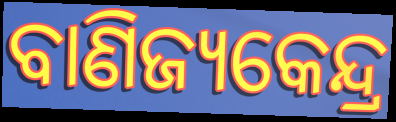
ବାଣିଜ୍ୟକେନ୍ଦ୍ର